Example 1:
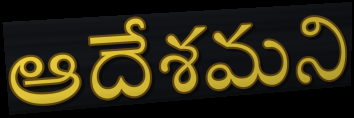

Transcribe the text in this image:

ఆదేశమని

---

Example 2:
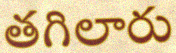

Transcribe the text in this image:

తగిలారు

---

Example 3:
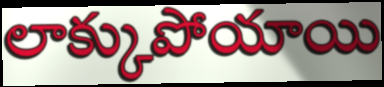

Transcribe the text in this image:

లాక్కుపోయాయి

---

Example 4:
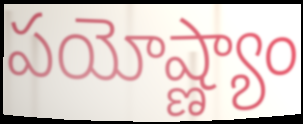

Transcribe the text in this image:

పయోష్ణ్యాం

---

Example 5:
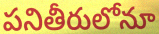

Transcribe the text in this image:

పనితీరులోనూ